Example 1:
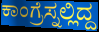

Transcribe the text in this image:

ಕಾಂಗ್ರೆಸ್ನಲ್ಲಿದ್ದ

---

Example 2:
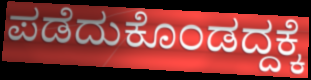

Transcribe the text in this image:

ಪಡೆದುಕೊಂಡದ್ದಕ್ಕೆ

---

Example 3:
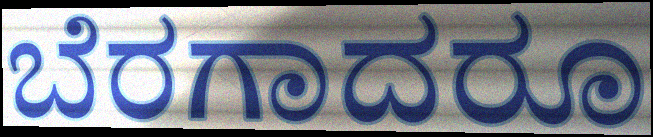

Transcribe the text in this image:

ಬೆರಗಾದರೂ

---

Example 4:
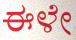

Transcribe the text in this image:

ಈಳೇ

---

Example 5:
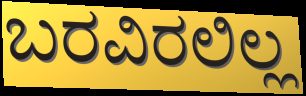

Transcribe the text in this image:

ಬರವಿರಲಿಲ್ಲ